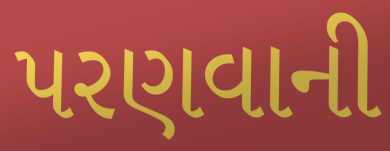
પરણવાની